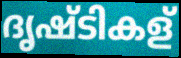
ദൃഷ്ടികള്